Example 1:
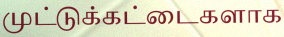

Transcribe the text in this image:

முட்டுக்கட்டைகளாக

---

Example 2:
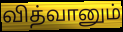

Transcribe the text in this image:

வித்வானும்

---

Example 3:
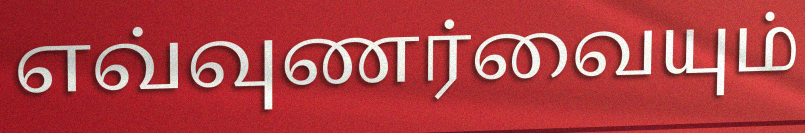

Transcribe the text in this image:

எவ்வுணர்வையும்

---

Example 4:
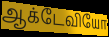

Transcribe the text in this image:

ஆக்டேவியோ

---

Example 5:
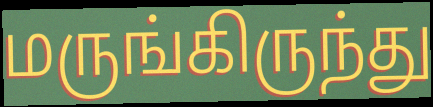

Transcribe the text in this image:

மருங்கிருந்து